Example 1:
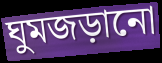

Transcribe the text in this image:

ঘুমজড়ানো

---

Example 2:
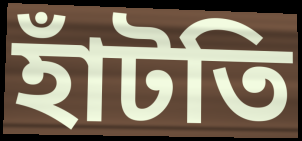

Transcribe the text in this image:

হাঁটতি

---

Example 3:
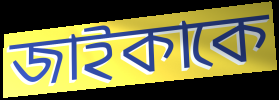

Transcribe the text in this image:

জাইকাকে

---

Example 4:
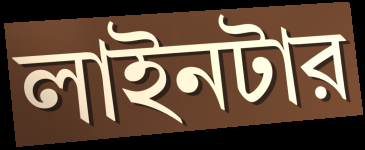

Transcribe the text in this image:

লাইনটার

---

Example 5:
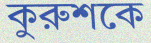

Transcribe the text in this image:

কুরুশকে